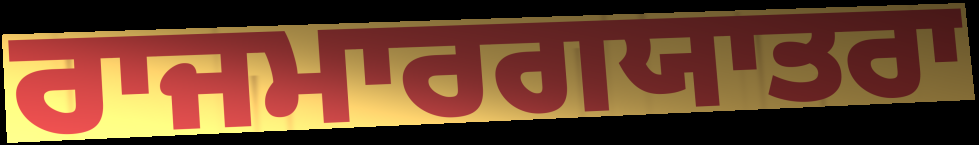
ਰਾਜਮਾਰਗਯਾਤਰਾ